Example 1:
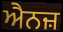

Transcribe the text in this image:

ਐਨਜ਼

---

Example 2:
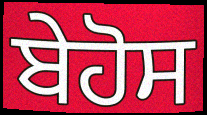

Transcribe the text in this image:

ਬੇਹੋਸ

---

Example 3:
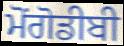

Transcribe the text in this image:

ਮੋਂਗੋਡੀਬੀ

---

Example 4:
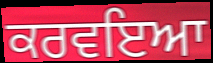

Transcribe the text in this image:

ਕਰਵਇਆ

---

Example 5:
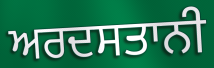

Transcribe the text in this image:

ਅਰਦਸਤਾਨੀ